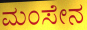
ಮಂಸೇನ